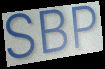
SBP